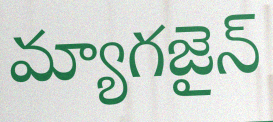
మ్యాగజైన్